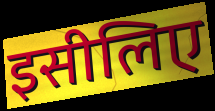
इसीलिए